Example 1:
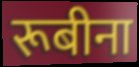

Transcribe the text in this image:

रूबीना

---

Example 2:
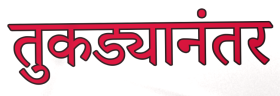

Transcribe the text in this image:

तुकड्यानंतर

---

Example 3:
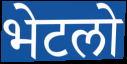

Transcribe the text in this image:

भेटलो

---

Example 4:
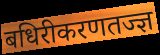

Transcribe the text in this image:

बधिरीकरणतज्ज्ञ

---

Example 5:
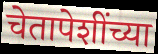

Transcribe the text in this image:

चेतापेशींच्या